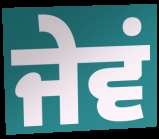
ਜੇਵਂ